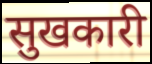
सुखकारी